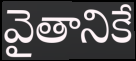
వైతానికే